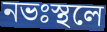
নভঃস্থলে